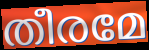
തീരമേ